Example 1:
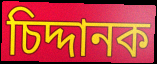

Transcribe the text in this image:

চিদ্দানক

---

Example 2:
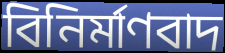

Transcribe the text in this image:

বিনিৰ্মাণবাদ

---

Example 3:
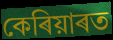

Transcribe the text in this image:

কেৰিয়াৰত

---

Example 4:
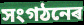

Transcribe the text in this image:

সংগঠনেৰ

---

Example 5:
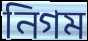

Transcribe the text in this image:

নিগম